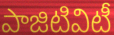
పాజిటివిటీ